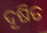
ଦୂଷିତ